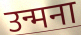
उन्मना